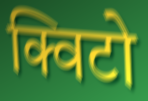
क्विटो